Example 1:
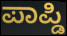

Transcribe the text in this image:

ಪಾಪ್ಡಿ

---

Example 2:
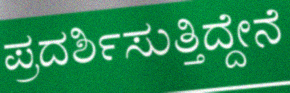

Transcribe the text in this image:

ಪ್ರದರ್ಶಿಸುತ್ತಿದ್ದೇನೆ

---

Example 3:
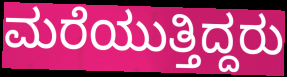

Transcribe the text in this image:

ಮರೆಯುತ್ತಿದ್ದರು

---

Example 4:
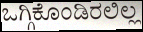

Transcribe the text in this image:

ಒಗ್ಗಿಕೊಂಡಿರಲಿಲ್ಲ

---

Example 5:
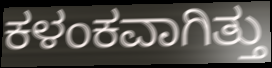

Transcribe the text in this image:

ಕಳಂಕವಾಗಿತ್ತು